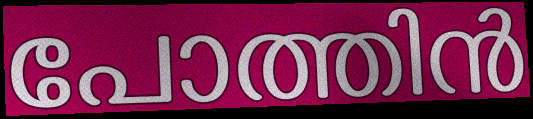
പോത്തിൻ